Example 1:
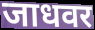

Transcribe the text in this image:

जाधवर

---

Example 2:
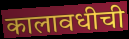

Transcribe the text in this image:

कालावधीची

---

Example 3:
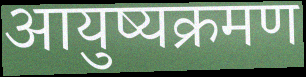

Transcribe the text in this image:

आयुष्यक्रमण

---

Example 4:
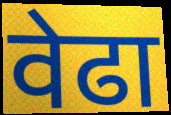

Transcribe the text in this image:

वेढा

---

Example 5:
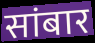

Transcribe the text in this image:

सांबार